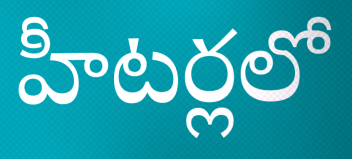
హీటర్లలో